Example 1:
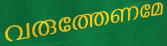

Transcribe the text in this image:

വരുത്തേണമേ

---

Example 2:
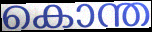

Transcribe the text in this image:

കൊന്ത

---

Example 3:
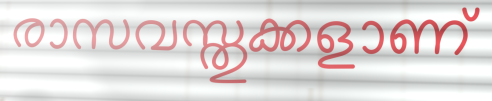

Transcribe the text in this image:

രാസവസ്തുക്കളാണ്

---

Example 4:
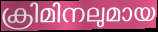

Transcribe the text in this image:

ക്രിമിനലുമായ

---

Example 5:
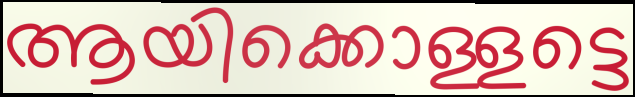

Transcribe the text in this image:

ആയിക്കൊള്ളട്ടെ